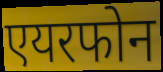
एयरफोन